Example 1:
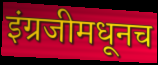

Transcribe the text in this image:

इंग्रजीमधूनच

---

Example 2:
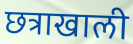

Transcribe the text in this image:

छत्राखाली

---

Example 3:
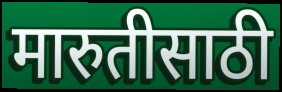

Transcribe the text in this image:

मारुतीसाठी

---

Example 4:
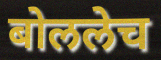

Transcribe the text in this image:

बोललेच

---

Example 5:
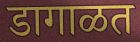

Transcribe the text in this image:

डागाळत